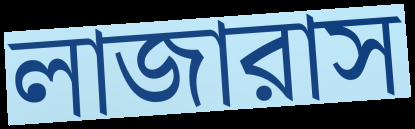
লাজারাস